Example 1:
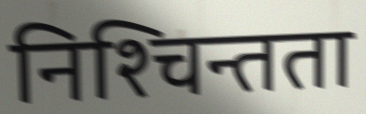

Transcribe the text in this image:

निश्चिन्तता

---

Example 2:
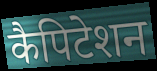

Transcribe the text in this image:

कैपिटेशन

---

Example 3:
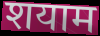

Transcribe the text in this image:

शयाम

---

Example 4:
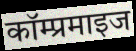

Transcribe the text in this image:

कॉम्प्रमाइज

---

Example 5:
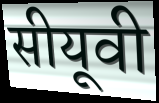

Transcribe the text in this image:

सीयूवी